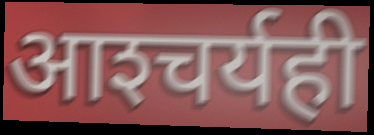
आश्‍चर्यही